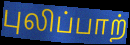
புலிப்பாற்